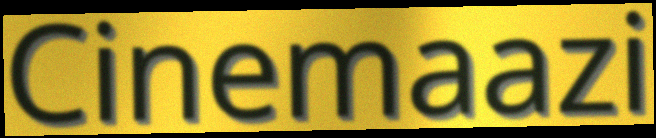
Cinemaazi